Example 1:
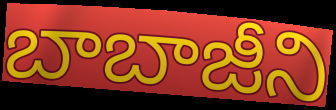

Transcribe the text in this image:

బాబాజీని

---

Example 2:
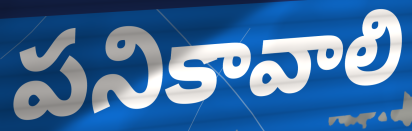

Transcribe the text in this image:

పనికావాలి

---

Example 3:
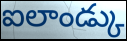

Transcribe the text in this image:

ఐలాండ్కు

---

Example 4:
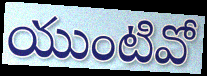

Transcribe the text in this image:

యుంటివో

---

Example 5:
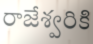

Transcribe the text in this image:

రాజేశ్వరికి